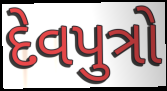
દેવપુત્રો